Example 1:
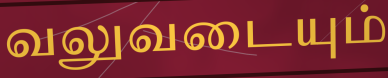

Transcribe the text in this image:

வலுவடையும்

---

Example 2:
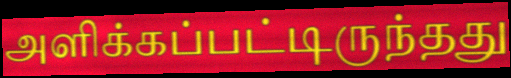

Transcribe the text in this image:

அளிக்கப்பட்டிருந்தது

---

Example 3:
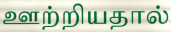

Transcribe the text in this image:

ஊற்றியதால்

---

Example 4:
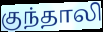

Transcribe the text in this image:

குந்தாலி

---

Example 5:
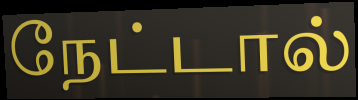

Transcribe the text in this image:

நேட்டால்